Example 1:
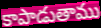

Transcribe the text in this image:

కాపాడుతాము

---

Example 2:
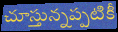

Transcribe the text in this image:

చూస్తున్నప్పటికీ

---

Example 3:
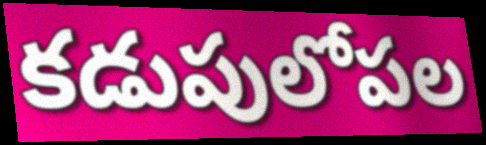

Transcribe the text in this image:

కడుపులోపల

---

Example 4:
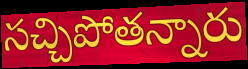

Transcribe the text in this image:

సచ్చిపోతన్నారు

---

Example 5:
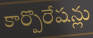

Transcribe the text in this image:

కార్పొరేషన్లు